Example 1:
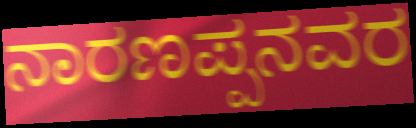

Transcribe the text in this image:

ನಾರಣಪ್ಪನವರ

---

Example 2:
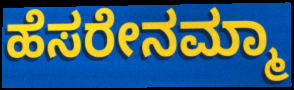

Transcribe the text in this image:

ಹೆಸರೇನಮ್ಮಾ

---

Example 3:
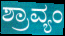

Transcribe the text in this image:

ಶ್ರಾವ್ಯಂ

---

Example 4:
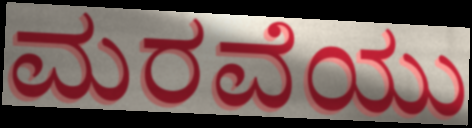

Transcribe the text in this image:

ಮರವೆಯು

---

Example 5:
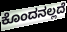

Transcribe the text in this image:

ಕೊಂದನಲ್ಲದೆ